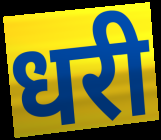
धरी